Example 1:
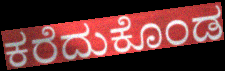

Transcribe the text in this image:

ಕರೆದುಕೊಂಡ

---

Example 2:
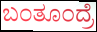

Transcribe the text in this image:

ಬಂತೂಂದ್ರೆ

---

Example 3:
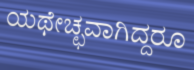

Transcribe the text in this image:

ಯಥೇಚ್ಛವಾಗಿದ್ದರೂ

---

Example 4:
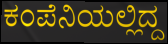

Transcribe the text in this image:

ಕಂಪೆನಿಯಲ್ಲಿದ್ದ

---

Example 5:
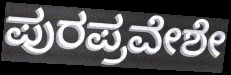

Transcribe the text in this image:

ಪುರಪ್ರವೇಶೇ